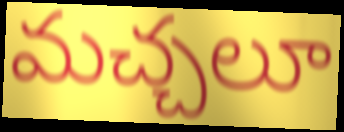
మచ్చలూ